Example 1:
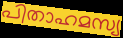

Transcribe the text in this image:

പിതാഹമസ്യ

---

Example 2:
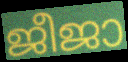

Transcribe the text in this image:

ജീജാ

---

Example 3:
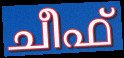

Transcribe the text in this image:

ചീഫ്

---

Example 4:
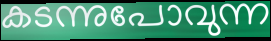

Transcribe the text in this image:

കടന്നുപോവുന്ന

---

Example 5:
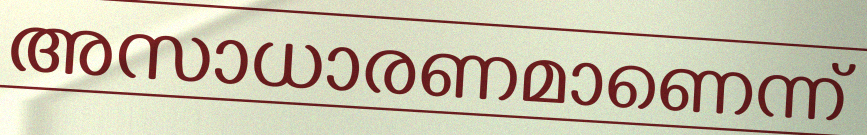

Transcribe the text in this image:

അസാധാരണമാണെന്ന്